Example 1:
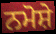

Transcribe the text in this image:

ਨਮੋਸ਼ੇ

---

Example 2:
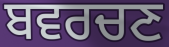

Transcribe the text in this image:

ਬਵਰਚਣ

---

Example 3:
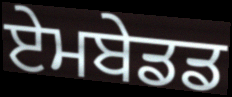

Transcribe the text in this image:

ਏਮਬੇਡਡ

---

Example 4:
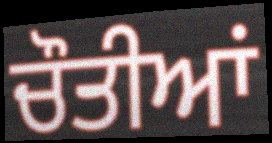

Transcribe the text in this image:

ਚੌਤੀਆਂ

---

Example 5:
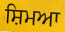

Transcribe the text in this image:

ਸ਼ਿਮਆ